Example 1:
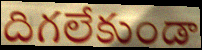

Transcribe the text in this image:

దిగలేకుండా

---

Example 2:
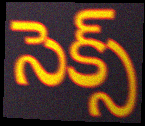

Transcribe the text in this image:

సెక్స్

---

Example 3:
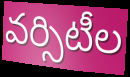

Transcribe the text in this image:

వర్సిటీల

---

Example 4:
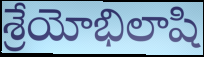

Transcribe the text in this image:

శ్రేయోభిలాషి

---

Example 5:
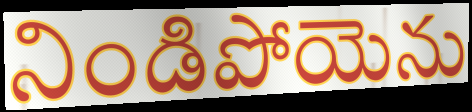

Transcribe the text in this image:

నిండిపోయెను